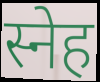
स्नेह